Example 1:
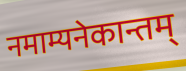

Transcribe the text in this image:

नमाम्यनेकान्तम्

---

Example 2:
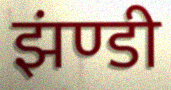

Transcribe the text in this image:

झंण्डी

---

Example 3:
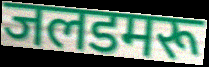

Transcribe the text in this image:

जलडमरू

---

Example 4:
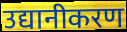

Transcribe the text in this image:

उद्यानीकरण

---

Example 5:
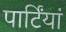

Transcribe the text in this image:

पार्टिंयां